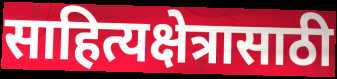
साहित्यक्षेत्रासाठी